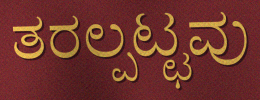
ತರಲ್ಪಟ್ಟವು